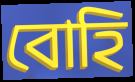
বোহি